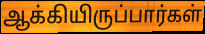
ஆக்கியிருப்பார்கள்